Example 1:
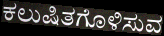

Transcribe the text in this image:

ಕಲುಷಿತಗೊಳಿಸುವ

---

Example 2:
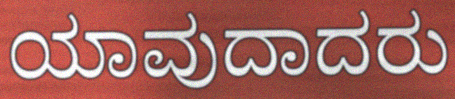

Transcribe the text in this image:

ಯಾವುದಾದರು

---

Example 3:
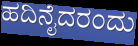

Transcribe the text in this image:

ಹದಿನೈದರಂದು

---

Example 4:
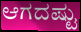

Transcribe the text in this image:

ಆಗದಷ್ಟು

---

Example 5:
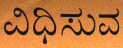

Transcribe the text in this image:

ವಿಧಿಸುವ